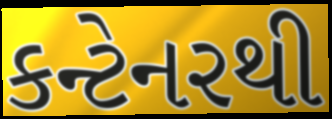
કન્ટેનરથી